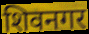
शिवनगर